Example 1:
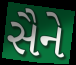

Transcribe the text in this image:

સૈને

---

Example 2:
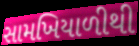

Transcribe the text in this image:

સામખિયાળીથી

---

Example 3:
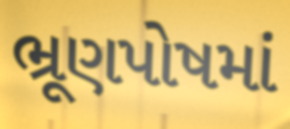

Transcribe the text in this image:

ભ્રૂણપોષમાં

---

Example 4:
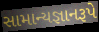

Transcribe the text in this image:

સામાન્યજ્ઞાનરૂપે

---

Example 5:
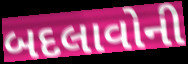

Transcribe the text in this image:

બદલાવોની